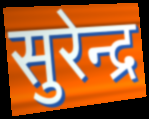
सुरेन्द्र